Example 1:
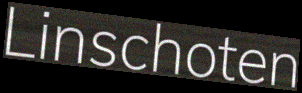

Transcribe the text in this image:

Linschoten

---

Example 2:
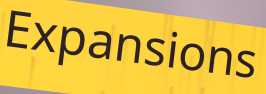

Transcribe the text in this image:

Expansions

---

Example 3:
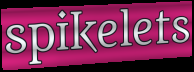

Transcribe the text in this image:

spikelets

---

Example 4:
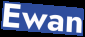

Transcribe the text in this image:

Ewan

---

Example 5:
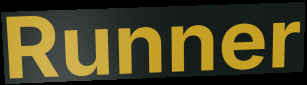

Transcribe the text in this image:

Runner